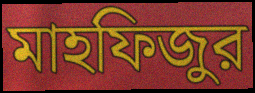
মাহফিজুর